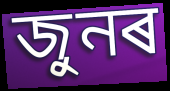
জুনৰ